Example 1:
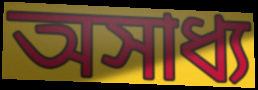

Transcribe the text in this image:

অসাধ্য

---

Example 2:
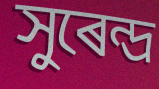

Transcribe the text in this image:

সুৰেন্দ্ৰ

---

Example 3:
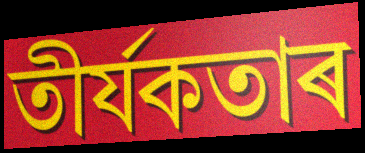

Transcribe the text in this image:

তীৰ্যকতাৰ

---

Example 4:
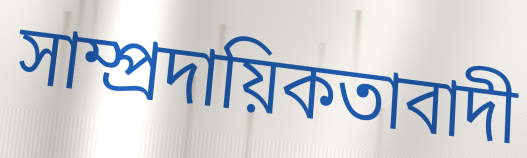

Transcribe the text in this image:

সাম্প্ৰদায়িকতাবাদী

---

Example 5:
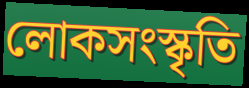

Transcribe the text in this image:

লোকসংস্কৃতি